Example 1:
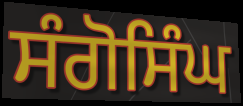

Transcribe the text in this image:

ਸੰਗੋਸਿੰਘ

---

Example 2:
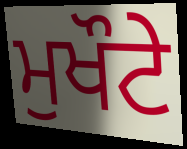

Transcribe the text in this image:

ਮੁਖੌਟੇ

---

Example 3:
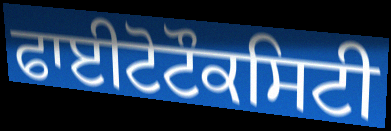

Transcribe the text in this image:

ਫਾਈਟੋਟੌਕਸਿਟੀ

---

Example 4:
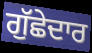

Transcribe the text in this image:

ਗੁੱਛੇਦਾਰ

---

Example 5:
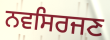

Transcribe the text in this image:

ਨਵਸਿਰਜਣ